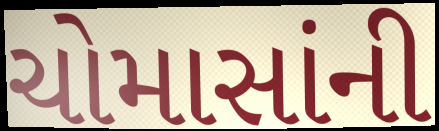
ચોમાસાંની